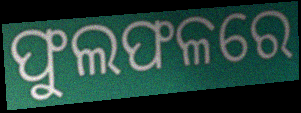
ଫୁଲଫଳରେ